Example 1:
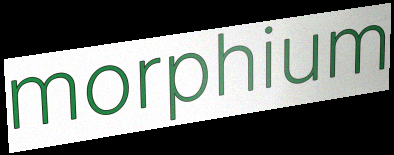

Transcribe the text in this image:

morphium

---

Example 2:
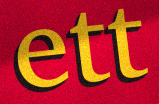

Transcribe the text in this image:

ett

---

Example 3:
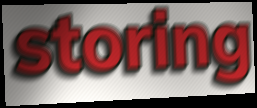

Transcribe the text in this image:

storing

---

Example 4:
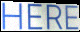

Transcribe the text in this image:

HERE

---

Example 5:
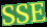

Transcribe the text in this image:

SSE